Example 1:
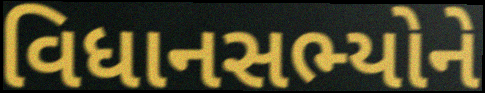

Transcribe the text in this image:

વિધાનસભ્યોને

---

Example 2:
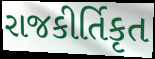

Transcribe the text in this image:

રાજકીર્તિકૃત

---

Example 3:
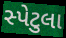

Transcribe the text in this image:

સ્પેટુલા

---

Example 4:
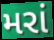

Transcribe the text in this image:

મરાં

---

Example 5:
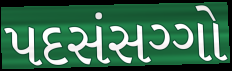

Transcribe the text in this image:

પદસંસગ્ગો